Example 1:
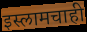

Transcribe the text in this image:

इस्लामचाही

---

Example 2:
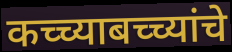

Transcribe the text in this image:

कच्च्याबच्च्यांचे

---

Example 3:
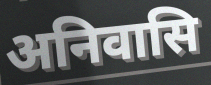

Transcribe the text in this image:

अनिवासि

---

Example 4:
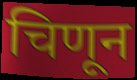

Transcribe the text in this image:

चिणून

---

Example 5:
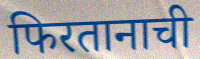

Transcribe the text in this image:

फिरतानाची